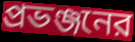
প্রভঞ্জনের